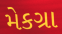
મેકગ્રા